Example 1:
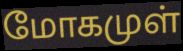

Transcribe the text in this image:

மோகமுள்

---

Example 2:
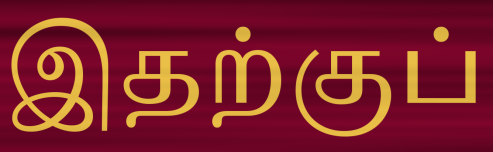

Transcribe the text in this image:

இதற்குப்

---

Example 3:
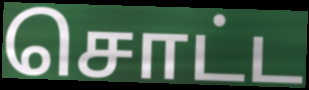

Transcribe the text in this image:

சொட்ட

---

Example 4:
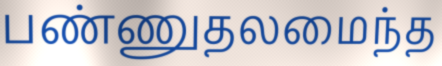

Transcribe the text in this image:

பண்ணுதலமைந்த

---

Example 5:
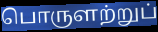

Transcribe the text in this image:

பொருளற்றுப்